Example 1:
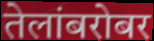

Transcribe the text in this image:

तेलांबरोबर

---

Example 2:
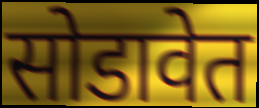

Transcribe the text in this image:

सोडावेत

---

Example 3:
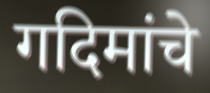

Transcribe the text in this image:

गदिमांचे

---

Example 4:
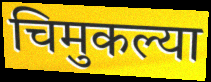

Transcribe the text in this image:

चिमुकल्या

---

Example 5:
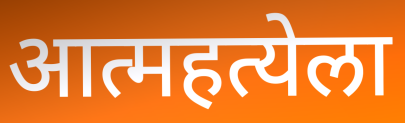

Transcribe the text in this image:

आत्महत्येला